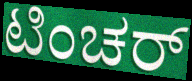
ಟಿಂಚರ್